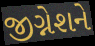
જીગ્નેશને